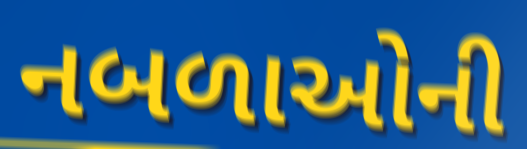
નબળાઓની